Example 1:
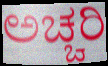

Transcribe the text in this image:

ಅಚ್ಚರಿ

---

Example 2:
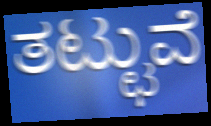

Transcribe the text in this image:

ತಟ್ಟುವೆ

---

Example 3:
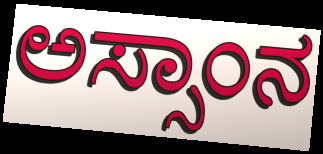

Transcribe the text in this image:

ಅಸ್ಸಾಂನ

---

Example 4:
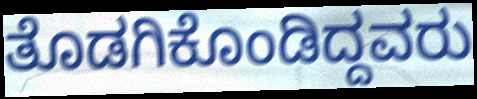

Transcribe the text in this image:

ತೊಡಗಿಕೊಂಡಿದ್ದವರು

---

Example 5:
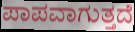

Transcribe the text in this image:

ಪಾಪವಾಗುತ್ತದೆ